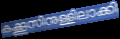
കക്കൂസിനുള്ളിലാക്കി